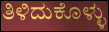
ತಿಳಿದುಕೊಳ್ಳು